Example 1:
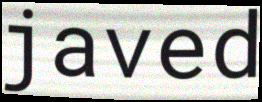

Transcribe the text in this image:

javed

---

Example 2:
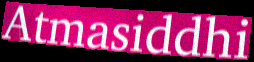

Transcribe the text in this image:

Atmasiddhi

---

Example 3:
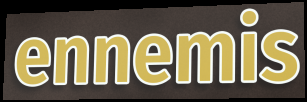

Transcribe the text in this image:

ennemis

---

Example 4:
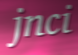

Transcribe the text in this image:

jnci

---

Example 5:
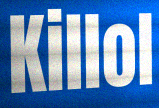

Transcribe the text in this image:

Killol